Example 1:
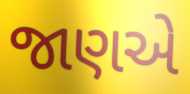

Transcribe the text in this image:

જાણએ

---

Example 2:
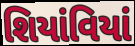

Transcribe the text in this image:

શિયાંવિયાં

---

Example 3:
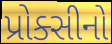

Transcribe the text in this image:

પ્રોક્સીનો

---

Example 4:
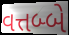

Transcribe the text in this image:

વત્તબ્બે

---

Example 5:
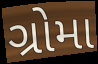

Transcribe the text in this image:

ગ્રોમા